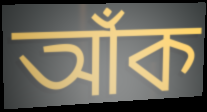
আঁক